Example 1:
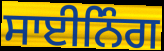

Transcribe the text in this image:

ਸਾਈਨਿੰਗ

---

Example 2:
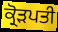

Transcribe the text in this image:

ਕ੍ਰੋੜਪਤੀ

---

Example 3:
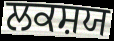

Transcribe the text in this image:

ਲਕਸ਼ਯ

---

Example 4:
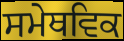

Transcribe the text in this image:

ਸਮੇਥਵਿਕ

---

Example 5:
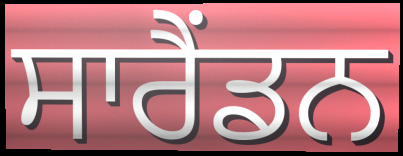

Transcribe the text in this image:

ਸਾਰੈਂਡਨ